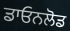
ਡਾਓਨਲੋਡ